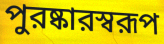
পুরষ্কারস্বরূপ